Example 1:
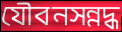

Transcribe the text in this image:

যৌবনসন্নদ্ধ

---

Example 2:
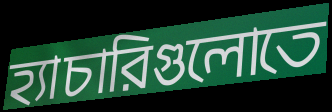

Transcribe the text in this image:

হ্যাচারিগুলোতে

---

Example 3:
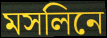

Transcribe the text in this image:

মসলিনে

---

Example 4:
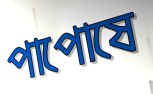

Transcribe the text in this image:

পাপোষে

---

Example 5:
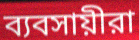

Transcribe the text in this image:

ব্যবসায়ীরা